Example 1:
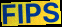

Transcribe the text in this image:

FIPS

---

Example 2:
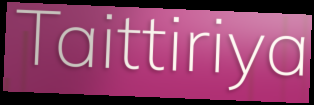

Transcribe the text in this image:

Taittiriya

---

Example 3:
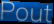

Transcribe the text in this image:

Pout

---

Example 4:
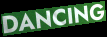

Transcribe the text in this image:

DANCING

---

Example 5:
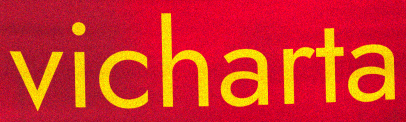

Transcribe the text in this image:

vicharta